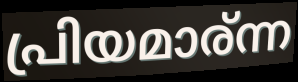
പ്രിയമാര്ന്ന